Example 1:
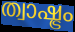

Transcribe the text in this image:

ത്വാഷ്ട്രം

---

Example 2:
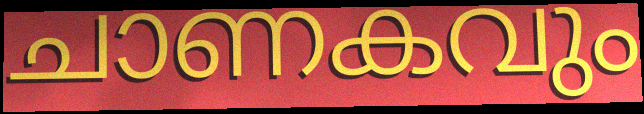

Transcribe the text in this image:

ചാണകവും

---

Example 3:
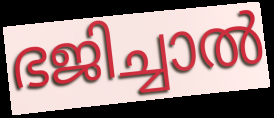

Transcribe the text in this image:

ഭജിച്ചാൽ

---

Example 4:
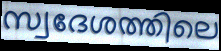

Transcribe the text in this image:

സ്വദേശത്തിലെ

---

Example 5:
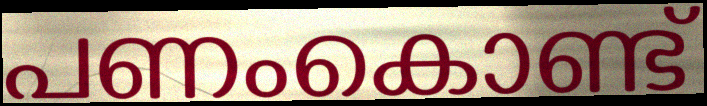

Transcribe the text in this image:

പണംകൊണ്ട്